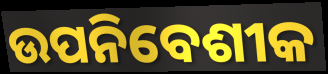
ଉପନିବେଶୀକ